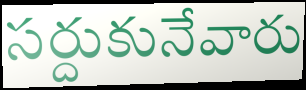
సర్దుకునేవారు